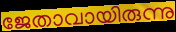
ജേതാവായിരുന്നു